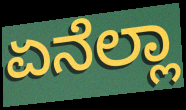
ಏನೆಲ್ಲಾ